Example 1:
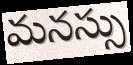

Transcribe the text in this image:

మనస్సు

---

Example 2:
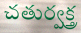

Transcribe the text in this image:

చతుర్వక్త్ర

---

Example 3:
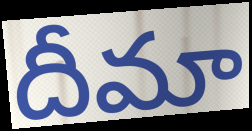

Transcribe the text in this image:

దీమా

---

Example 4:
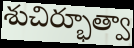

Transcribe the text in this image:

శుచిర్భూత్వా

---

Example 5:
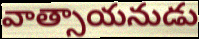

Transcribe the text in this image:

వాత్సాయనుడు